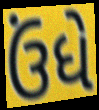
ઉંધે